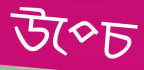
উপ্চে